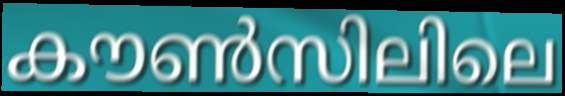
കൗൺസിലിലെ